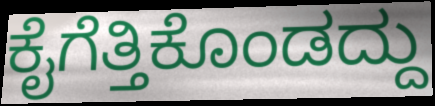
ಕೈಗೆತ್ತಿಕೊಂಡದ್ದು